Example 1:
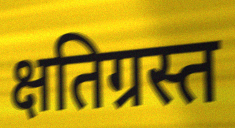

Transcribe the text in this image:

क्षतिग्रस्त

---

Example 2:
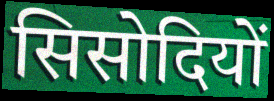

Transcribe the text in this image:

सिसोदियों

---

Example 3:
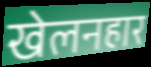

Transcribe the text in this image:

खेलनहार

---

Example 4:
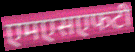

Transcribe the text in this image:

एमएसएफटी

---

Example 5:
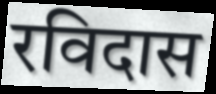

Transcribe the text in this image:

रविदास